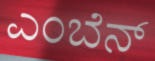
ಎಂಬೆನ್